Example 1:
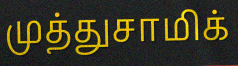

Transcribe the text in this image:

முத்துசாமிக்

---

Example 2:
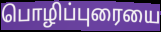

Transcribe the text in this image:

பொழிப்புரையை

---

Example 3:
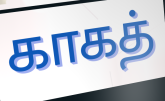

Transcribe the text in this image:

காகத்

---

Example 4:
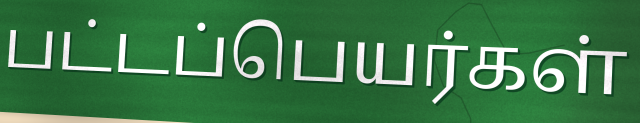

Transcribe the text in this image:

பட்டப்பெயர்கள்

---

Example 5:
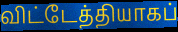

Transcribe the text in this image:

விட்டேத்தியாகப்